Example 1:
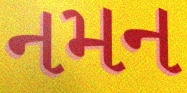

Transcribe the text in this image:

નમન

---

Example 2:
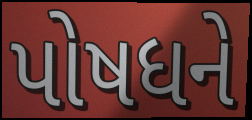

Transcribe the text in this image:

પોષધને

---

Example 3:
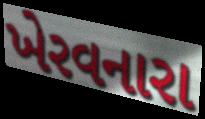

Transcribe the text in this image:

ખેરવનારા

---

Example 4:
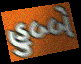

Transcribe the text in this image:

હુબ્બે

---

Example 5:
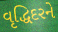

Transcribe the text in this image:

વૃદ્ધિદરને